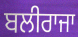
ਬਲੀਰਾਜਾ